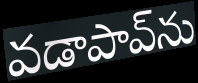
వడాపావ్‌ను